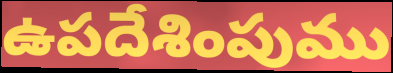
ఉపదేశింపుము